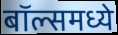
बॉल्समध्ये